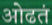
ओढतं